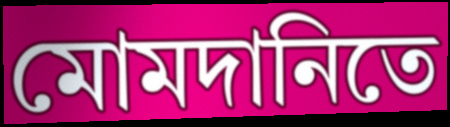
মোমদানিতে